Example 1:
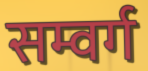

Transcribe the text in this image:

सम्वर्ग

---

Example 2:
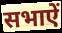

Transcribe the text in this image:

सभाऐं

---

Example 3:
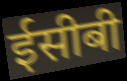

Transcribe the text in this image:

ईसीबी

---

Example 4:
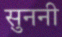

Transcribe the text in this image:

सुननी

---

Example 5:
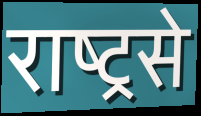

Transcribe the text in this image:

राष्ट्रसे